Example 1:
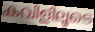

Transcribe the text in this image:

കവിളിലൂടെ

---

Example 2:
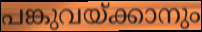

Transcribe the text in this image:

പങ്കുവയ്ക്കാനും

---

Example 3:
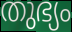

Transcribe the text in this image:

തുഭ്യം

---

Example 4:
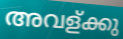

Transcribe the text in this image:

അവള്ക്കു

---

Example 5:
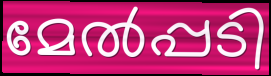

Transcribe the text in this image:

മേൽപ്പടി